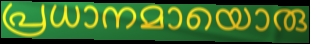
പ്രധാനമായൊരു